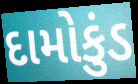
દામોકુંડ